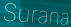
Surana